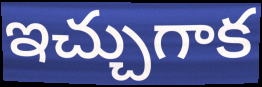
ఇచ్చుగాక